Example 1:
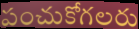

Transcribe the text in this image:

పంచుకోగలరు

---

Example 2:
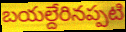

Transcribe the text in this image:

బయల్దేరినప్పటి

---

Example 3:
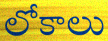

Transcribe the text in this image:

లోకాలు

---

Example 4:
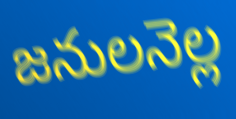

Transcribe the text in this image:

జనులనెల్ల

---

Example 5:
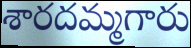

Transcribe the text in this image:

శారదమ్మగారు